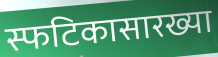
स्फटिकासारख्या